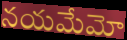
నయమేమో